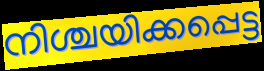
നിശ്ചയിക്കപ്പെട്ട